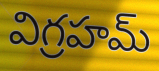
విగ్రహమ్